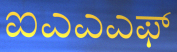
ಐಎಎಎಫ್